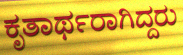
ಕೃತಾರ್ಥರಾಗಿದ್ದರು